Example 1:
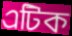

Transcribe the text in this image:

এটিক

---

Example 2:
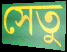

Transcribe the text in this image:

সেতু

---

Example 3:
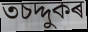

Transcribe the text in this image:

তচদ্দুকৰ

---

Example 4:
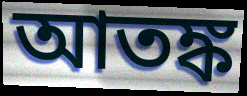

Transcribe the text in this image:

আতঙ্ক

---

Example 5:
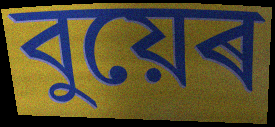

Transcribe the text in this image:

বুয়েৰ